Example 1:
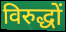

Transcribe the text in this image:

विरुद्धों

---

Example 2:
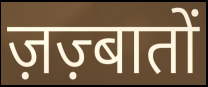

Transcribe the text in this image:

ज़ज़्बातों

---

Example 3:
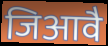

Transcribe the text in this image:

जिआवै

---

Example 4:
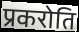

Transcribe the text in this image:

प्रकरोति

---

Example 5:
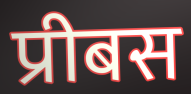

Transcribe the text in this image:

प्रीबस